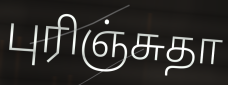
புரிஞ்சுதா